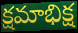
క్షమాభిక్ష